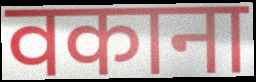
वकाना